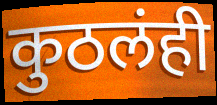
कुठलंही